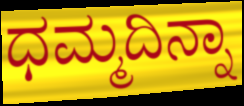
ಧಮ್ಮದಿನ್ನಾ